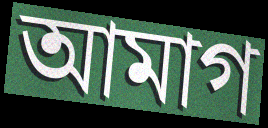
আমাগ